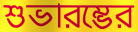
শুভারম্ভের